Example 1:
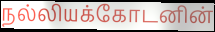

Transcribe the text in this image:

நல்லியக்கோடனின்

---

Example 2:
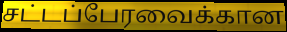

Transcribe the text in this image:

சட்டப்பேரவைக்கான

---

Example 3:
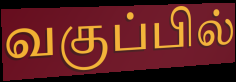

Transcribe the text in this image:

வகுப்பில்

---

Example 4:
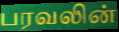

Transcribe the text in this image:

பரவலின்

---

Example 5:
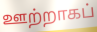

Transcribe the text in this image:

ஊற்றாகப்